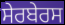
ਸੇਰਬੇਰਸ